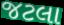
જટલા